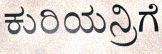
ಕುರಿಯನ್ರಿಗೆ